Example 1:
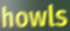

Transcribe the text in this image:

howls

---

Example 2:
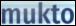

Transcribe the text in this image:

mukto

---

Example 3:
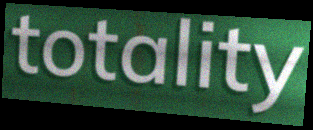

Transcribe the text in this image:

totality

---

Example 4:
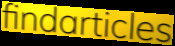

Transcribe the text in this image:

findarticles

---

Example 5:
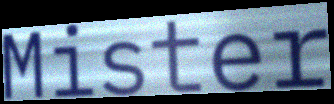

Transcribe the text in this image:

Mister